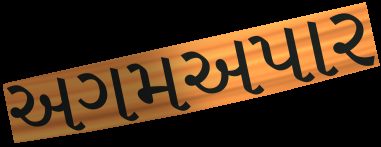
અગમઅપાર